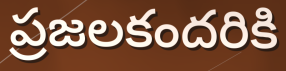
ప్రజలకందరికి